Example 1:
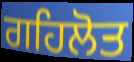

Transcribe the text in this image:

ਗਹਿਲੋਤ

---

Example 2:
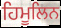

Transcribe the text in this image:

ਹਿਮੂਲਿਨ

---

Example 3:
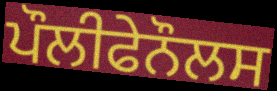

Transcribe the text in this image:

ਪੌਲੀਫੇਨੌਲਸ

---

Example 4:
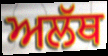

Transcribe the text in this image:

ਅਲੱਥ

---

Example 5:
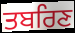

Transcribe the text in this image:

ਤਬਰਿਣ